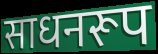
साधनरूप